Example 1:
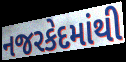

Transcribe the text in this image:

નજરકેદમાંથી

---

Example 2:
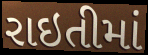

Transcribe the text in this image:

રાઇતીમાં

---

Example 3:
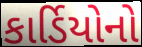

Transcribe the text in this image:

કાર્ડિયોનો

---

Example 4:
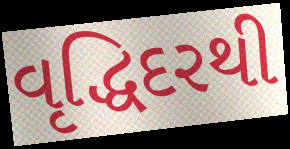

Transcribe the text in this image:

વૃદ્ધિદરથી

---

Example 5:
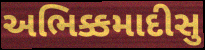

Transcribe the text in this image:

અભિક્કમાદીસુ